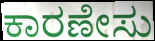
ಕಾರಣೇಸು